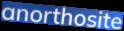
anorthosite